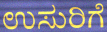
ಉಸುರಿಗೆ